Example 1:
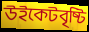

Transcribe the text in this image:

উইকেটবৃষ্টি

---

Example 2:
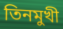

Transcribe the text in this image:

তিনমুখী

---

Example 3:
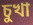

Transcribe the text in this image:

চুখা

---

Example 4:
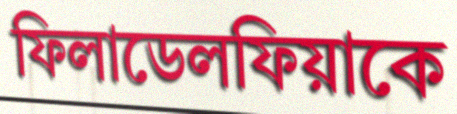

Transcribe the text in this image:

ফিলাডেলফিয়াকে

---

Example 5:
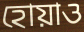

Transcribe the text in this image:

হোয়াও